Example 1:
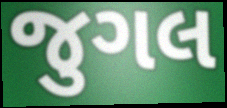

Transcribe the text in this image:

જુગલ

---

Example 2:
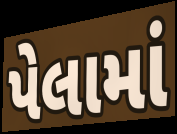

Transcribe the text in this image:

પેલામાં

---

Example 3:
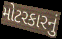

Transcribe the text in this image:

મોટરકારનું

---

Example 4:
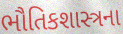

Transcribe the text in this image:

ભૌતિકશાસ્ત્રના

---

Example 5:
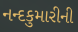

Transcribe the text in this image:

નન્દકુમારીની